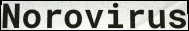
Norovirus